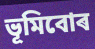
ভূমিবোৰ